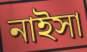
নাইসা